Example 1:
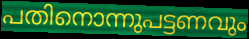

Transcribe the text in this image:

പതിനൊന്നുപട്ടണവും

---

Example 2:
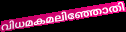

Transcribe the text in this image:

വിധമകമലിഞ്ഞോതി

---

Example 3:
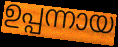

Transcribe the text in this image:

ഉപ്പന്നായ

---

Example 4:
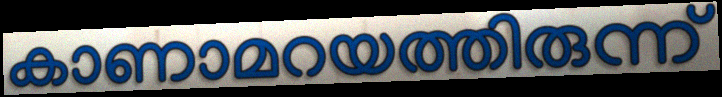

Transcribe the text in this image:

കാണാമറയത്തിരുന്ന്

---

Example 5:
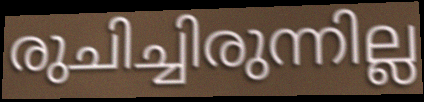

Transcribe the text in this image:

രുചിച്ചിരുന്നില്ല